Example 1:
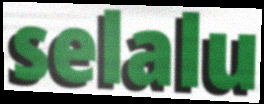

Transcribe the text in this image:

selalu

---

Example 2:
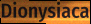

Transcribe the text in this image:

Dionysiaca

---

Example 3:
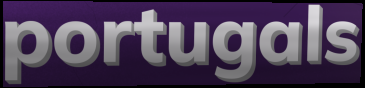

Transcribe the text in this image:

portugals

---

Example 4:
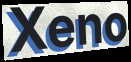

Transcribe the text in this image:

Xeno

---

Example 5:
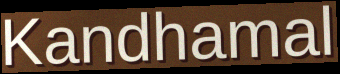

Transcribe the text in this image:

Kandhamal